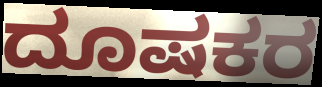
ದೂಷಕರ